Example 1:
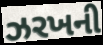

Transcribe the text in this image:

ઝરખની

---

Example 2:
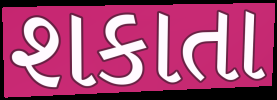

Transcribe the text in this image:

શકાતા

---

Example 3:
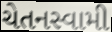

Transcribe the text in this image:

ચેતનસ્વામી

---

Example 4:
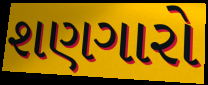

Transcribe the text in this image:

શણગારો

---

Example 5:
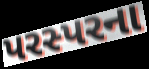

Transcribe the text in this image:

પરસ્પરના